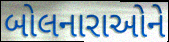
બોલનારાઓને